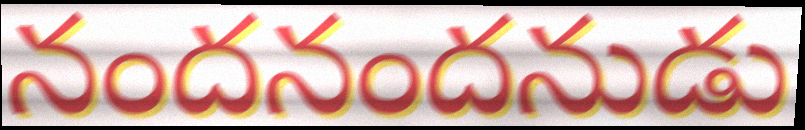
నందనందనుడు